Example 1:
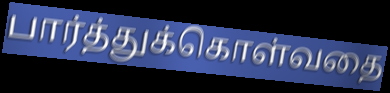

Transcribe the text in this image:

பார்த்துக்கொள்வதை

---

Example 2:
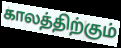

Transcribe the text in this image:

காலத்திற்கும்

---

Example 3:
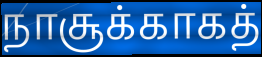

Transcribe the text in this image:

நாசூக்காகத்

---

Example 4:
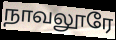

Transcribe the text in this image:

நாவலூரே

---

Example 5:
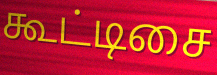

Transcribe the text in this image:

கூட்டிசை